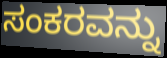
ಸಂಕರವನ್ನು